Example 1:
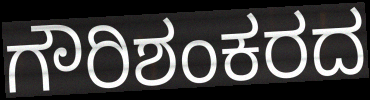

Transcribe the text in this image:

ಗೌರಿಶಂಕರದ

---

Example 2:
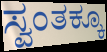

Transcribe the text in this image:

ಸ್ವಂತಕ್ಕೂ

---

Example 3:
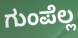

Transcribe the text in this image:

ಗುಂಪೆಲ್ಲ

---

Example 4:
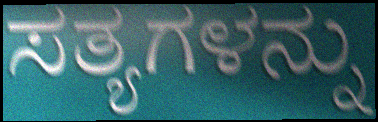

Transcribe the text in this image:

ಸತ್ಯಗಳನ್ನು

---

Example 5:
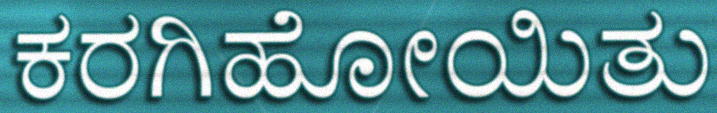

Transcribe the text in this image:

ಕರಗಿಹೋಯಿತು